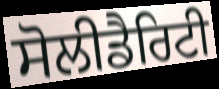
ਸੋਲੀਡੈਰਿਟੀ